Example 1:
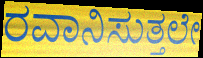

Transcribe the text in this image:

ರವಾನಿಸುತ್ತಲೇ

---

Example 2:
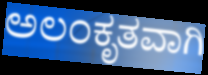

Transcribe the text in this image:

ಅಲಂಕೃತವಾಗಿ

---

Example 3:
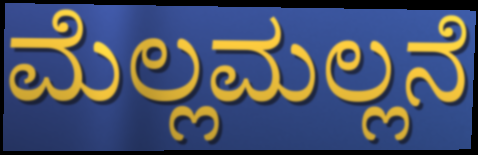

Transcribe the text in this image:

ಮೆಲ್ಲಮಲ್ಲನೆ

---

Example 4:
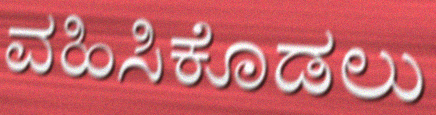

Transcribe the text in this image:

ವಹಿಸಿಕೊಡಲು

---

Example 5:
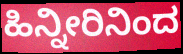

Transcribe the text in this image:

ಹಿನ್ನೀರಿನಿಂದ